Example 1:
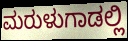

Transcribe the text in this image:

ಮರುಳುಗಾಡಲ್ಲಿ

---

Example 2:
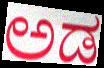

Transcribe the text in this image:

ಅಡ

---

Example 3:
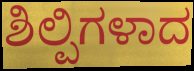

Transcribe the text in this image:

ಶಿಲ್ಪಿಗಳಾದ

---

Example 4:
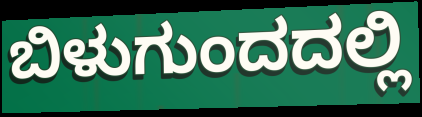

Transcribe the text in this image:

ಬಿಳುಗುಂದದಲ್ಲಿ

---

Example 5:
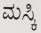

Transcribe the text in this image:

ಮಸ್ಕಿ